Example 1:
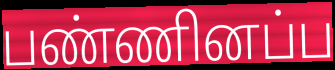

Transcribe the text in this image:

பண்ணினப்ப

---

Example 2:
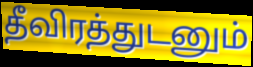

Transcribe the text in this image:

தீவிரத்துடனும்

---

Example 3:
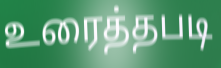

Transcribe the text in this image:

உரைத்தபடி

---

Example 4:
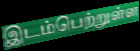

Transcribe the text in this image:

இடம்பெற்றுள்ள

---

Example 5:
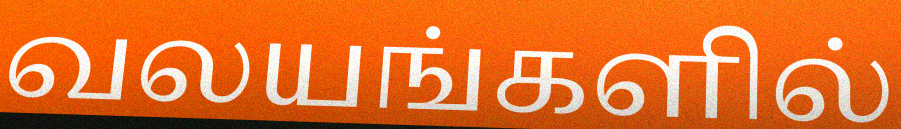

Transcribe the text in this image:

வலயங்களில்